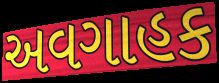
અવગાહક